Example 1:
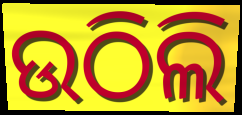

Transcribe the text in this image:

ଉଠିଲି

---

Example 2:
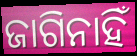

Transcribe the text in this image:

ଜାଗିନାହିଁ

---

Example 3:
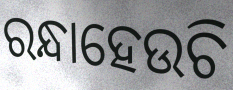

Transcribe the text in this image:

ରନ୍ଧାହେଉଚି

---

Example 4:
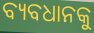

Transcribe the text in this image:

ବ୍ୟବଧାନକୁ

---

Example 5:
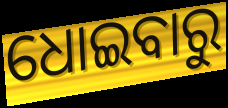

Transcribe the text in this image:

ଧୋଇବାରୁ